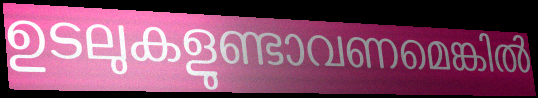
ഉടലുകളുണ്ടാവണമെങ്കിൽ